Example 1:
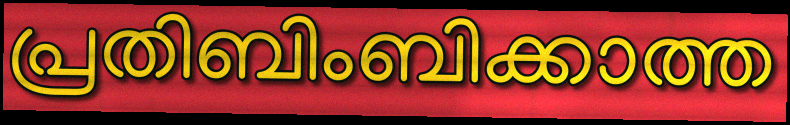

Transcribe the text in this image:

പ്രതിബിംബിക്കാത്ത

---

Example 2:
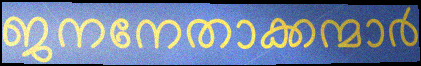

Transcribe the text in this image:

ജനനേതാക്കന്മാർ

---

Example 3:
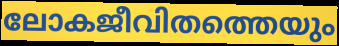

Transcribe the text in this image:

ലോകജീവിതത്തെയും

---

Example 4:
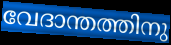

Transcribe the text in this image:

വേദാന്തത്തിനു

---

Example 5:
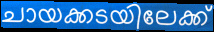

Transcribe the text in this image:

ചായക്കടയിലേക്ക്